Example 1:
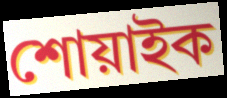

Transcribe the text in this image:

শোয়াইক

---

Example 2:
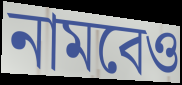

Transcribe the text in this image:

নামবেও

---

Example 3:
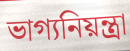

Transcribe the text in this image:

ভাগ্যনিয়ন্ত্রা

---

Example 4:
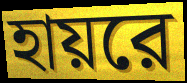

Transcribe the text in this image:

হায়রে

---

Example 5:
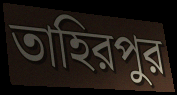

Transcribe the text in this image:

তাহিরপুর